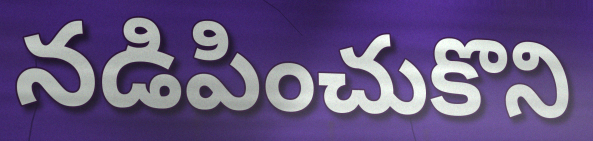
నడిపించుకొని